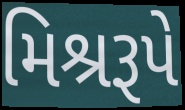
મિશ્રરૂપે